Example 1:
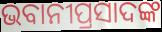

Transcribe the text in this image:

ଭବାନୀପ୍ରସାଦଙ୍କ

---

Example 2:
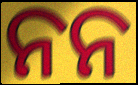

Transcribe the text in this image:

ନନ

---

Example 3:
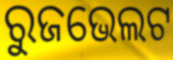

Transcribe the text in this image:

ରୁଜଭେଲଟ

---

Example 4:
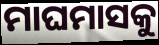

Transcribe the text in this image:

ମାଘମାସକୁ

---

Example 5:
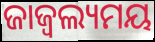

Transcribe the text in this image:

ଜାଜ୍ୱଲ୍ୟମୟ